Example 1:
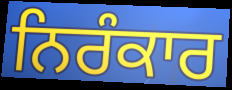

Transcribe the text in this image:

ਨਿਰੰਕਾਰ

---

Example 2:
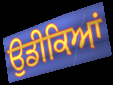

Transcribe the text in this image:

ਉਡੀਕਿਆਂ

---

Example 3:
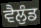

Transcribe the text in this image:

ਵੈਲੁੰਡ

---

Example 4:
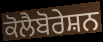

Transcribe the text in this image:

ਕੋਲੈਬੋਰੇਸ਼ਨ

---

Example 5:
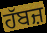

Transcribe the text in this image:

ਹੱਬਜ਼